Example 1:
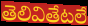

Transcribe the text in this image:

తెలివితేటలే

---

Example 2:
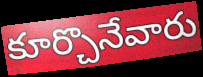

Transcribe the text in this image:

కూర్చొనేవారు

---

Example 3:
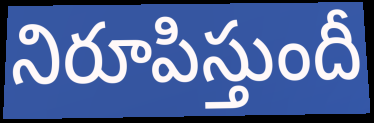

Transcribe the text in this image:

నిరూపిస్తుందీ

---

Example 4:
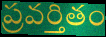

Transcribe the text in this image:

ప్రవర్తితం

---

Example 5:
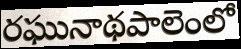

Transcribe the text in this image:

రఘునాథపాలెంలో